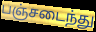
பஞ்சடைந்து